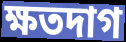
ক্ষতদাগ